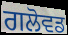
ਗਲੋਵਡ